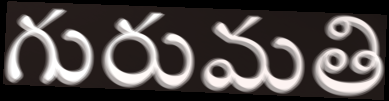
గురుమతి